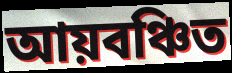
আয়বঞ্চিত